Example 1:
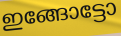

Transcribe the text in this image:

ഇങ്ങോട്ടോ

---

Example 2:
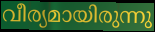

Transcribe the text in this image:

വീര്യമായിരുന്നു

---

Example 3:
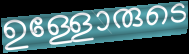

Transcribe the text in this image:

ഉള്ളോരുടെ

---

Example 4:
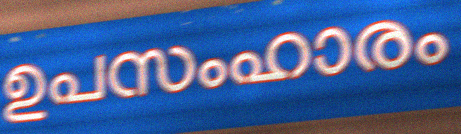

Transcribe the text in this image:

ഉപസംഹാരം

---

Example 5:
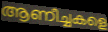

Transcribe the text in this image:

ആണീച്ചകളെ